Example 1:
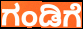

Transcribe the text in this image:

ಗಂಡಿಗೆ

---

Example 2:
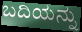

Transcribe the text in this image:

ಬದಿಯನ್ನು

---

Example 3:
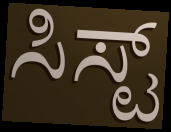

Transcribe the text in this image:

ಸಿಸ್ಟ್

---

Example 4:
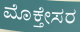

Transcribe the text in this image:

ಮೊಕ್ತೇಸರ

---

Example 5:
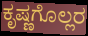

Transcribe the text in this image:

ಕೃಷ್ಣಗೊಲ್ಲರ